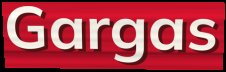
Gargas